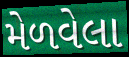
મેળવેલા